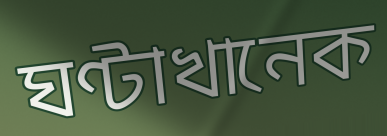
ঘণ্টাখানেক